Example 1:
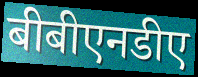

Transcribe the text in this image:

बीबीएनडीए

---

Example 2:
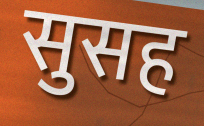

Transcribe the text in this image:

सुसह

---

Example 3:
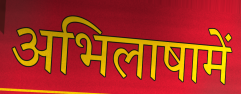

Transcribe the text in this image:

अभिलाषामें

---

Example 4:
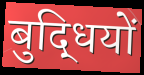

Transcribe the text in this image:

बुद्धियों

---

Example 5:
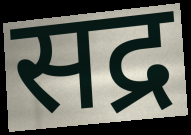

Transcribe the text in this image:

सद्र